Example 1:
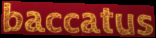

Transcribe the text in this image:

baccatus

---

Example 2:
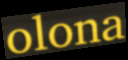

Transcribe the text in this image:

olona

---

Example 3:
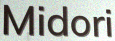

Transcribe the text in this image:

Midori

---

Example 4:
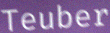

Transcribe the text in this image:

Teuber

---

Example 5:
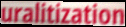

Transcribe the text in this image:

uralitization